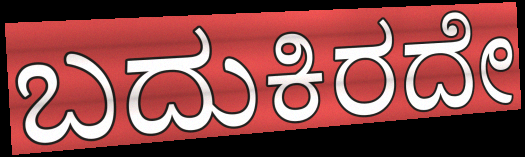
ಬದುಕಿರದೇ